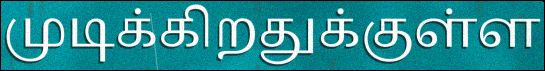
முடிக்கிறதுக்குள்ள